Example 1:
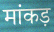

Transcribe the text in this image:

मांकड़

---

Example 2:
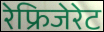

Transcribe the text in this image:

रेफ्रिजेरेट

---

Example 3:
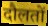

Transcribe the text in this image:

दौलतों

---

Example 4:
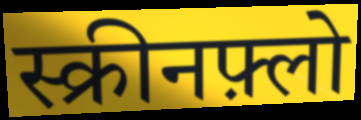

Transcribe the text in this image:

स्क्रीनफ़्लो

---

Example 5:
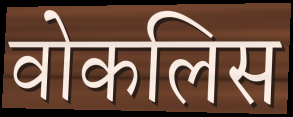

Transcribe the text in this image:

वोकलिस